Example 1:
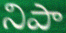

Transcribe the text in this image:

నిపా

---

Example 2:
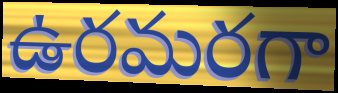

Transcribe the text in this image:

ఉరమరగా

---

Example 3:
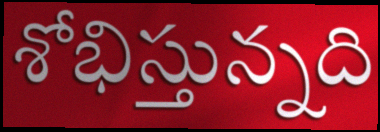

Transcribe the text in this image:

శోభిస్తున్నది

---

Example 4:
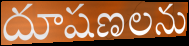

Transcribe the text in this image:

దూషణలను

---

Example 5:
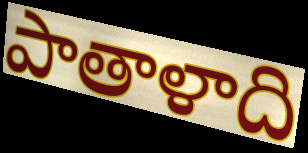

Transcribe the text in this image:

పాతాళాది